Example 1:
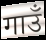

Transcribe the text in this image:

गाउँ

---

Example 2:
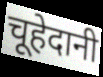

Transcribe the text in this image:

चूहेदानी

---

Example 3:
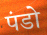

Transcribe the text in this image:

पंडो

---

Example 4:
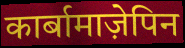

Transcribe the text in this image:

कार्बामाज़ेपिन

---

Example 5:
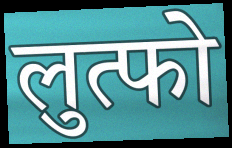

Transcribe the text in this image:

लुत्फो